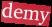
demy